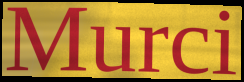
Murci